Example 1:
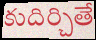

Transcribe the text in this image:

కుదిర్చితే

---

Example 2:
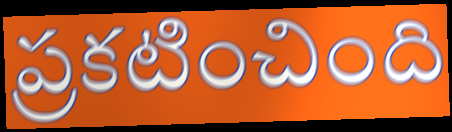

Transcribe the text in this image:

ప్రకటించింది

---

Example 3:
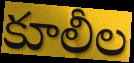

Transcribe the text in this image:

కూలీల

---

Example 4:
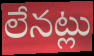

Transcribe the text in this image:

లేనట్లు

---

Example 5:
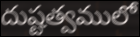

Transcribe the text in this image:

దుష్టత్వములో